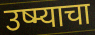
उष्म्याचा